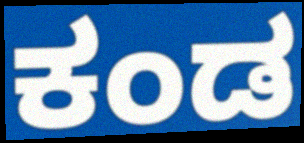
ಕಂಡ